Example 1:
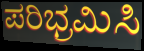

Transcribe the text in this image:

ಪರಿಭ್ರಮಿಸಿ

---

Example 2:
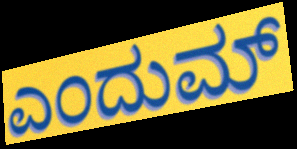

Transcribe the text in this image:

ಎಂದುಮ್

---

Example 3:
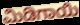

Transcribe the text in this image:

ಮಿಡಿಗಾಯಿ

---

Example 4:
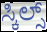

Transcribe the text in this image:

ಸ್ಕಿಲ್ಸ್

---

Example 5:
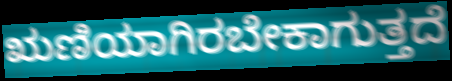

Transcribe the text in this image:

ಋಣಿಯಾಗಿರಬೇಕಾಗುತ್ತದೆ